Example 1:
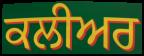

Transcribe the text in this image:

ਕਲੀਅਰ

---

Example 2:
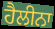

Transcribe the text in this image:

ਹੈਲੀਨਾ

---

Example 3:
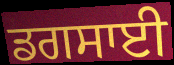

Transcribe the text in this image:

ਡਗਸਾਈ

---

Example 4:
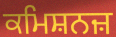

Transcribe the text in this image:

ਕਮਿਸ਼ਨਜ਼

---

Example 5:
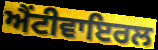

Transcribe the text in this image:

ਐਂਟੀਵਾਇਰਲ